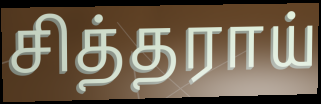
சித்தராய்